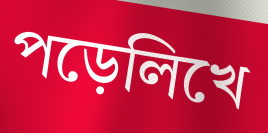
পড়েলিখে